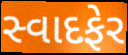
સ્વાદફેર